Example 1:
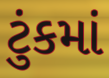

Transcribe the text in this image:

ટુંકમાં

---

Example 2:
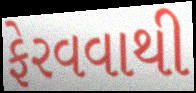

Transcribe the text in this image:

ફેરવવાથી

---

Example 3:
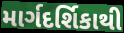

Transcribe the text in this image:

માર્ગદર્શિકાથી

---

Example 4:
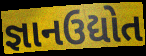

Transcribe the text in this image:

જ્ઞાનઉદ્યોત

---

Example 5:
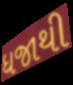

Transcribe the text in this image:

ધજાથી